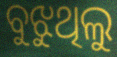
ବୁଝୁଥିଲୁ